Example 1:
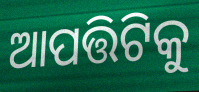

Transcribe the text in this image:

ଆପତ୍ତିଟିକୁ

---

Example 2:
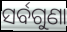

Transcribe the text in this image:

ସର୍ବଗୁଣା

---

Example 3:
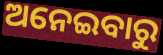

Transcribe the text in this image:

ଅନେଇବାରୁ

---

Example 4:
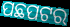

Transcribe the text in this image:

ପଛପଟର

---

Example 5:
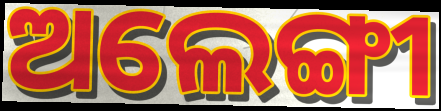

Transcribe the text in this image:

ଅଲେଙ୍ଗୀ